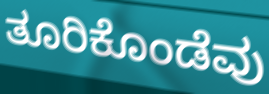
ತೂರಿಕೊಂಡೆವು